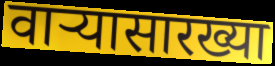
वाऱ्यासारख्या